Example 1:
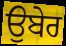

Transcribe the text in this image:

ਉਬੇਰ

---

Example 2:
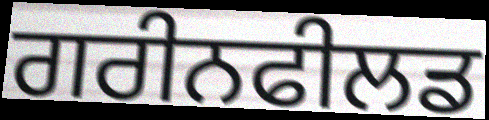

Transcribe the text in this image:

ਗਰੀਨਫੀਲਡ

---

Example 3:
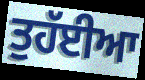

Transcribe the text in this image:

ਤੁਹੱਈਆ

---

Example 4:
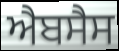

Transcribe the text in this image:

ਐਬਸੈਸ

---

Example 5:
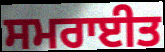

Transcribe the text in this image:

ਸਮਰਾਈਤ